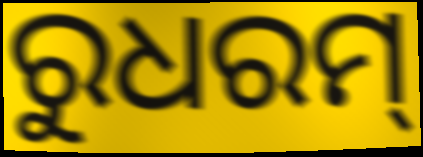
ରୁଧରମ୍